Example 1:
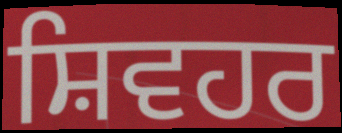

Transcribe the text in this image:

ਸ਼ਿਵਹਰ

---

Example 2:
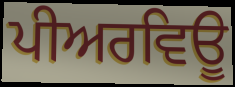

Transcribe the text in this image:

ਪੀਅਰਵਿਊ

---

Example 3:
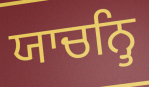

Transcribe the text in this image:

ਯਾਚਨ੍ਤਿ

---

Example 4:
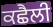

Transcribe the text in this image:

ਕਛੈਲੀ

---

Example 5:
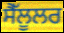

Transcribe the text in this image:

ਸੈੱਲੂਲਰ